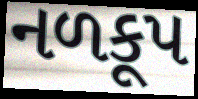
નળકૂપ